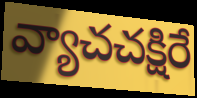
వ్యాచచక్షిరే